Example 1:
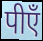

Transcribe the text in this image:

पीएँ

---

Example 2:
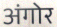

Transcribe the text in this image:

अंगोर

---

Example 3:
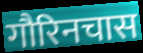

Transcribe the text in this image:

गौरिनचास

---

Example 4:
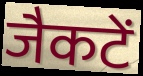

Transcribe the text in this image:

जैकटें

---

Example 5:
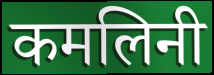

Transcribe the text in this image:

कमलिनी